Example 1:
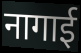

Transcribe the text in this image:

नागाई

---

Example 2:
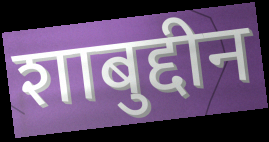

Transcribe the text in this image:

शाबुद्दीन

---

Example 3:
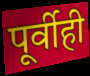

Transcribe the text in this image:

पूर्वीही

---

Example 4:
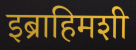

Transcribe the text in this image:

इब्राहिमशी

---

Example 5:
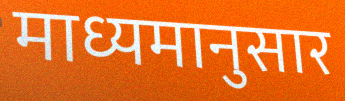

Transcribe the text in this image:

माध्यमानुसार